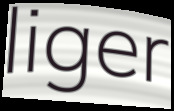
liger